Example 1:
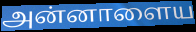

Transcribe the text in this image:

அன்னாளைய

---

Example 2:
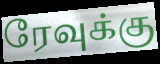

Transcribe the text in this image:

ரேவுக்கு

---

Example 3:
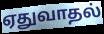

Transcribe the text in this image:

ஏதுவாதல்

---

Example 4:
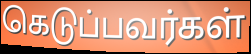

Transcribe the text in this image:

கெடுப்பவர்கள்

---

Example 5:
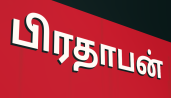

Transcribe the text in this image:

பிரதாபன்